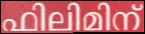
ഫിലിമിന്